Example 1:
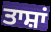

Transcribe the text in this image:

ਤਾਸ਼ਾਂ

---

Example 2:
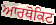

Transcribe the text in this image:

ਆਰਥੋਕਿਟ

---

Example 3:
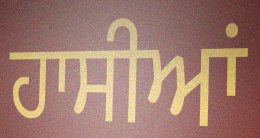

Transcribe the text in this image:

ਹਾਸੀਆਂ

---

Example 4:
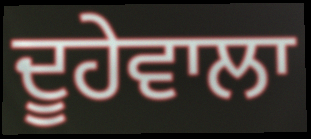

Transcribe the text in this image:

ਦੂਹੇਵਾਲਾ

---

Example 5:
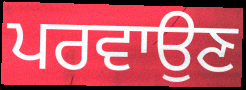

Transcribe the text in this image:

ਪਰਵਾਉਣ